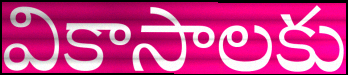
వికాసాలకు